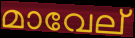
മാവേല്